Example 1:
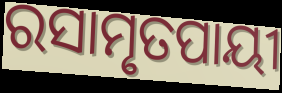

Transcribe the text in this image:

ରସାମୃତପାୟୀ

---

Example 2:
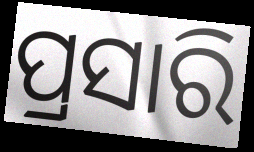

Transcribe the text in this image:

ପ୍ରସାରି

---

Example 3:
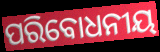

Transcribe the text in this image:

ପରିବୋଧନୀୟ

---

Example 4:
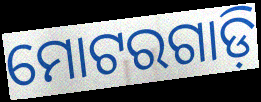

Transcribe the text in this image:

ମୋଟରଗାଡ଼ି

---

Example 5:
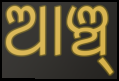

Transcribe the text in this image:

ଆଞ୍ଚ୍